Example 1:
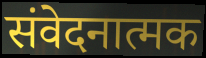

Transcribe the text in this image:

संवेदनात्मक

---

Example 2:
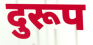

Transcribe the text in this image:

दुरूप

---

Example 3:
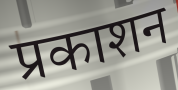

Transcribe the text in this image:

प्रकाशन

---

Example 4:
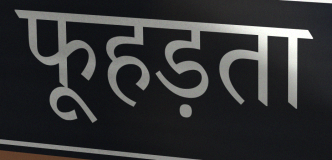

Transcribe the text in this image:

फूहड़ता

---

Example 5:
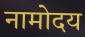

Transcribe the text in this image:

नामोदय